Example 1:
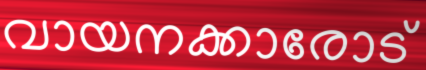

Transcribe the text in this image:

വായനക്കാരോട്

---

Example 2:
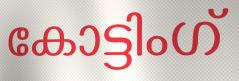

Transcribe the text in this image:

കോട്ടിംഗ്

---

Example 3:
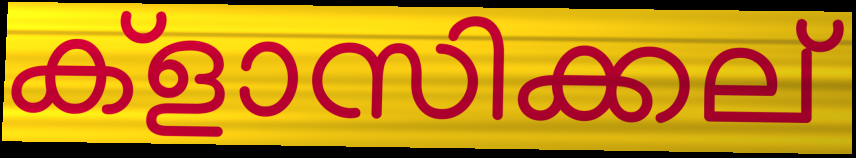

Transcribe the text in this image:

ക്ളാസിക്കല്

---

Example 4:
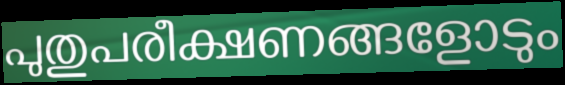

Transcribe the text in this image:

പുതുപരീക്ഷണങ്ങളോടും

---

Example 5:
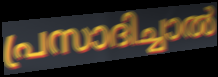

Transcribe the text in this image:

പ്രസാദിച്ചാൽ